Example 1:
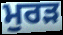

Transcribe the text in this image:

ਮੁਰੜ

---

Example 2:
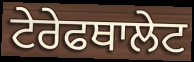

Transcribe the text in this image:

ਟੇਰੇਫਥਾਲੇਟ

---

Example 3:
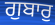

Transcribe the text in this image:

ਗੁਬਾਰੁ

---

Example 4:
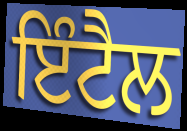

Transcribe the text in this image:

ਇੰਟੈਲ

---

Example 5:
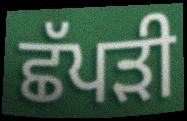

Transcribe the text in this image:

ਛੱਪੜੀ